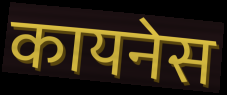
कायनेस